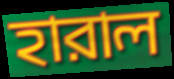
হারাল